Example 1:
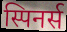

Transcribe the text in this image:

स्पिनर्स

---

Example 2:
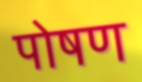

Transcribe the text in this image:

पोषण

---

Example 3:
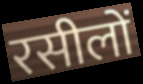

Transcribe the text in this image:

रसीलों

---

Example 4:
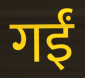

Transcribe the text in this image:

गईं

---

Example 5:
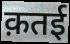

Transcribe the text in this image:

क़तई